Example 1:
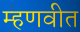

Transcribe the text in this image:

म्हणवीत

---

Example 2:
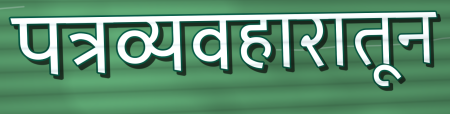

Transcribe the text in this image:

पत्रव्यवहारातून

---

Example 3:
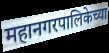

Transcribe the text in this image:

महानगरपालिकेच्या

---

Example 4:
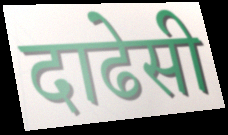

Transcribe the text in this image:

दाढेसी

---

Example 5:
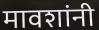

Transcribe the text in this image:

मावशांनी